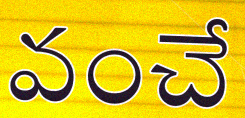
వంచే